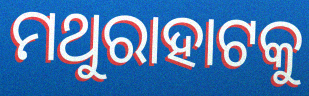
ମଥୁରାହାଟକୁ